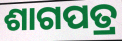
ଶାଗପତ୍ର